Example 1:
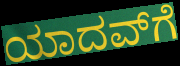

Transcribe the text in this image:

ಯಾದವ್‌ಗೆ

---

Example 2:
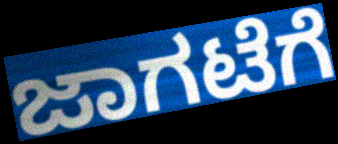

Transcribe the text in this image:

ಜಾಗಟೆಗೆ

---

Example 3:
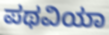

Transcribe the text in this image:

ಪಥವಿಯಾ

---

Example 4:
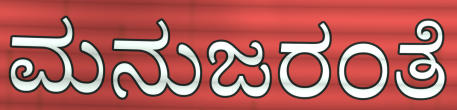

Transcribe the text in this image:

ಮನುಜರಂತೆ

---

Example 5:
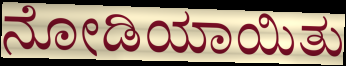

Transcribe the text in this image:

ನೋಡಿಯಾಯಿತು